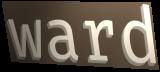
ward